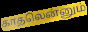
காதலென்னும்